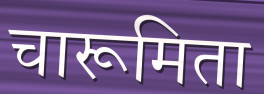
चारूमिता